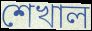
শেখাল